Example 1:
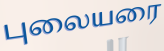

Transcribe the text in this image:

புலையரை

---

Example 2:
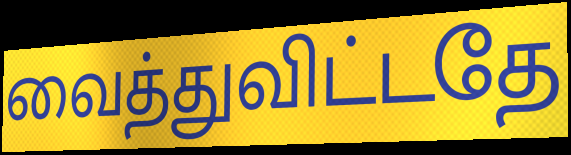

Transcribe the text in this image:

வைத்துவிட்டதே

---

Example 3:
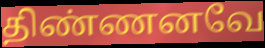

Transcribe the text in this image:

திண்ணனவே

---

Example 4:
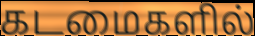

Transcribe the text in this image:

கடமைகளில்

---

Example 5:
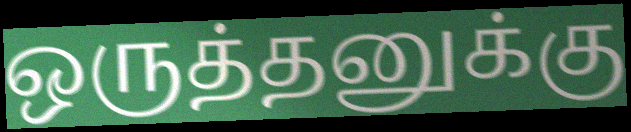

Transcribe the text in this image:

ஒருத்தனுக்கு